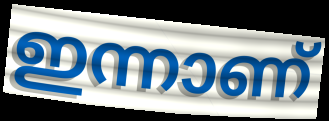
ഇന്നാണ്